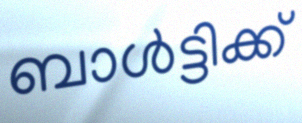
ബാൾട്ടിക്ക്